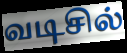
வடிசில்